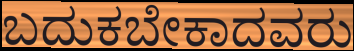
ಬದುಕಬೇಕಾದವರು